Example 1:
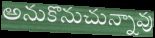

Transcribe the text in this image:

అనుకొనుచున్నావు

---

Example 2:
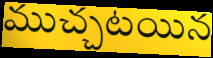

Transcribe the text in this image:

ముచ్చటయిన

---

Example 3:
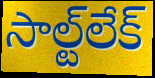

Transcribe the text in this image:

సాల్ట్‌లేక్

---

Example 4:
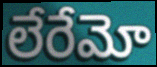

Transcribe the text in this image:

లేరేమో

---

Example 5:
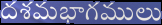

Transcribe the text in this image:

దశమభాగములు